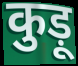
कुड़ू